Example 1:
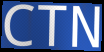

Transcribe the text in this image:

CTN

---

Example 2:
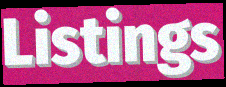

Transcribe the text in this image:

Listings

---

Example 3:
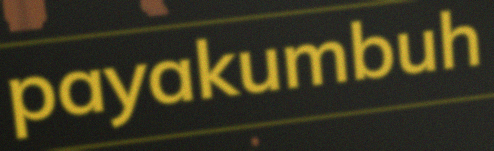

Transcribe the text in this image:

payakumbuh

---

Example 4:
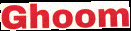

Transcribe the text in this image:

Ghoom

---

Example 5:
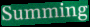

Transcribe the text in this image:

Summing